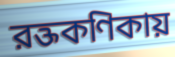
রক্তকণিকায়